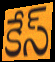
కేస్